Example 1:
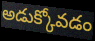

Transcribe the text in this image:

అడుక్కోవడం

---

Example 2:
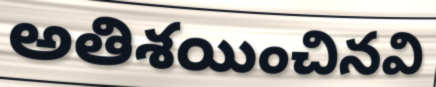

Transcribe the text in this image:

అతిశయించినవి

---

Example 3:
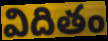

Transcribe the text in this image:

విదితం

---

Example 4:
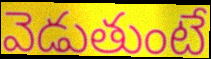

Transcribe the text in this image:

వెడుతుంటే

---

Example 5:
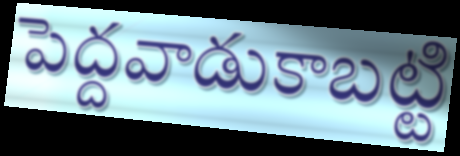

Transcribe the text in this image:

పెద్దవాడుకాబట్టి